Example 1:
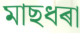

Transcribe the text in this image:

মাছধৰা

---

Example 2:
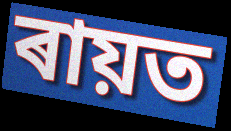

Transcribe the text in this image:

ৰায়ত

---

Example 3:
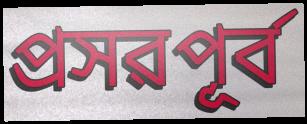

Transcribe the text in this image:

প্ৰসৱপূৰ্ব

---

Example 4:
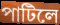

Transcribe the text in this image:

পাটিলে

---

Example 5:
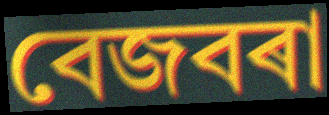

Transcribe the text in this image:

বেজবৰা